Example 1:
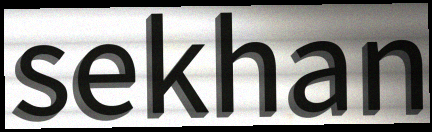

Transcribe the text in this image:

sekhan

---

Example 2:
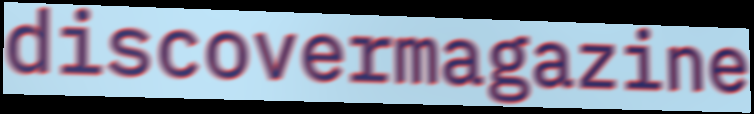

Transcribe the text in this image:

discovermagazine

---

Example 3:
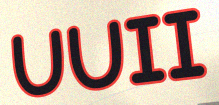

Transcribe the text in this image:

UUII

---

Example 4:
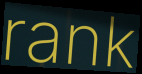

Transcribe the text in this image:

rank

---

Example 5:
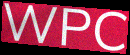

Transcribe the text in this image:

WPC